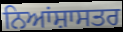
ਨਿਆਂਸ਼ਾਸਤਰ